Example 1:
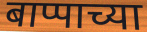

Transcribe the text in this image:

बाप्पाच्या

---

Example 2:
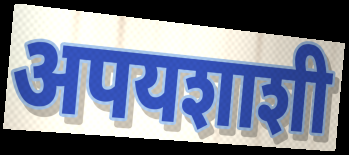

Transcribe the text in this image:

अपयशाशी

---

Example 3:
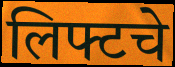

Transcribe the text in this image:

लिफ्टचे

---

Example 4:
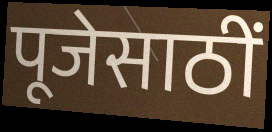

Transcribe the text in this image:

पूजेसाठीं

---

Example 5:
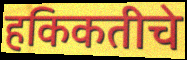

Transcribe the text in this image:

हकिकतीचे